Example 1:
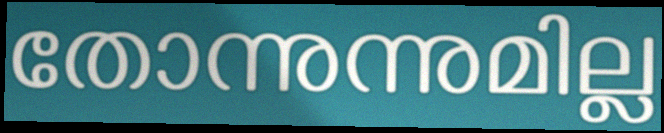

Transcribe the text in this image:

തോന്നുന്നുമില്ല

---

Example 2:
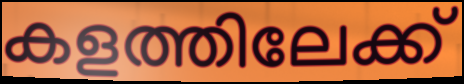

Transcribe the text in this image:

കളത്തിലേക്ക്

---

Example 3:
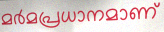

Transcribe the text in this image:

മർമപ്രധാനമാണ്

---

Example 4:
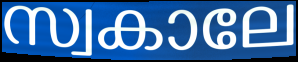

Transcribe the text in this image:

സ്വകാലേ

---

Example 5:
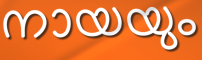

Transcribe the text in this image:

നായയും